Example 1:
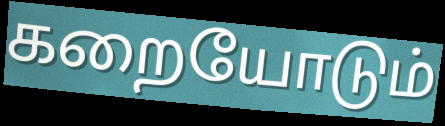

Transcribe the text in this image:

கறையோடும்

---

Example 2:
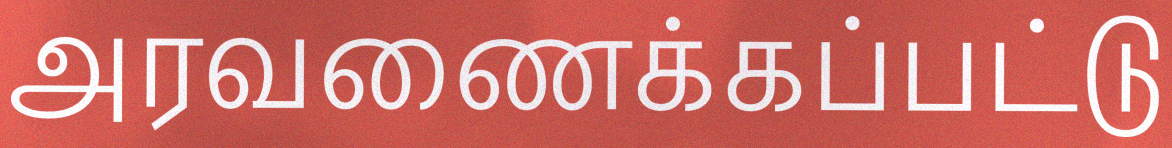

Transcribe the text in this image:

அரவணைக்கப்பட்டு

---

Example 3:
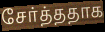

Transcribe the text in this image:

சேர்த்ததாக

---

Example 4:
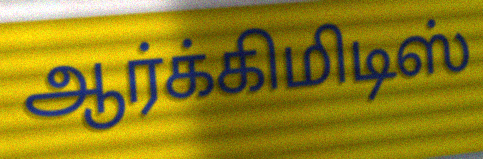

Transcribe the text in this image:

ஆர்க்கிமிடிஸ்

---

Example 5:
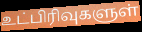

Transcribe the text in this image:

உட்பிரிவுகளுள்